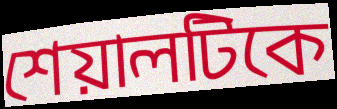
শেয়ালটিকে